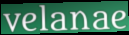
velanae